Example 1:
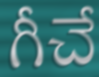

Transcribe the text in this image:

గీచే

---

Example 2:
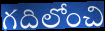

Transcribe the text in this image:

గదిలోంచి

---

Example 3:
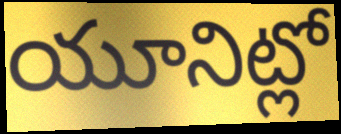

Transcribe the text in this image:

యూనిట్లో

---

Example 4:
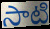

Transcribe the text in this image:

సాటి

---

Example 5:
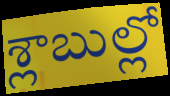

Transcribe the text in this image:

శ్లాబుల్లో